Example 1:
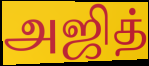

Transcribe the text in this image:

அஜித்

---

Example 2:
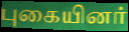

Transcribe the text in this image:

புகையினர்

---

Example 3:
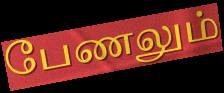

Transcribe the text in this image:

பேணலும்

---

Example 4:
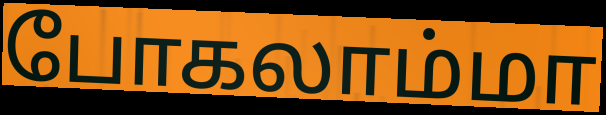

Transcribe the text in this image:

போகலாம்மா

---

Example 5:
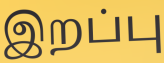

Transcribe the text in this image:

இறப்பு